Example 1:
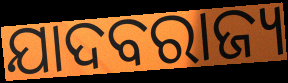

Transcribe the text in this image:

ଯାଦବରାଜ୍ୟ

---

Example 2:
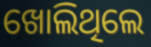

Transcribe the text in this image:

ଖୋଲିଥିଲେ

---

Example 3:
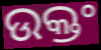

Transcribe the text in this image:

ଉକ୍ତଂ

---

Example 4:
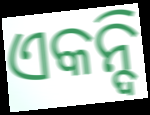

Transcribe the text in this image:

ଏକନ୍ଦି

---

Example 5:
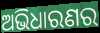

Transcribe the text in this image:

ଅଭିଧାରଣର